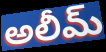
అలీమ్